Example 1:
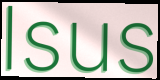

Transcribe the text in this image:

Isus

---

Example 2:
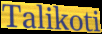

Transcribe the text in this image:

Talikoti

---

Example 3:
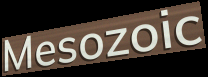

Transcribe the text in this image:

Mesozoic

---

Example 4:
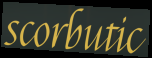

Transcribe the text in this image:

scorbutic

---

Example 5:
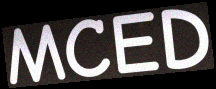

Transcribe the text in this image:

MCED